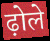
ढ़ोले